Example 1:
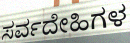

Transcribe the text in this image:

ಸರ್ವದೇಹಿಗಳ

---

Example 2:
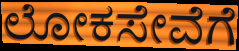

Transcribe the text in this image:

ಲೋಕಸೇವೆಗೆ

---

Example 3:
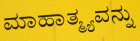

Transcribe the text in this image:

ಮಾಹಾತ್ಮ್ಯವನ್ನು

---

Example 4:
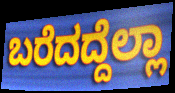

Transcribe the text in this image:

ಬರೆದದ್ದೆಲ್ಲಾ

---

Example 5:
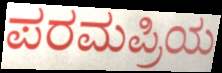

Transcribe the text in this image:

ಪರಮಪ್ರಿಯ